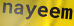
nayeem